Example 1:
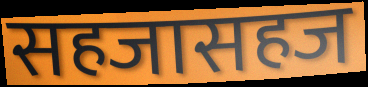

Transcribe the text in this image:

सहजासहज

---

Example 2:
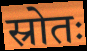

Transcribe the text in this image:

स्रोतः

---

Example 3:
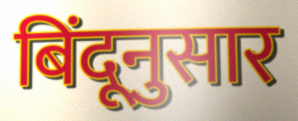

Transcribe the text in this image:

बिंदूनुसार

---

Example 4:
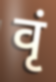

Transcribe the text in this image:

वृं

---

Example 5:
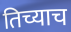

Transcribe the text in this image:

तिच्याच